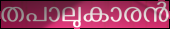
തപാലുകാരൻ